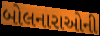
બોલનારાઓની